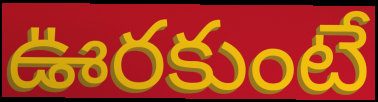
ఊరకుంటే